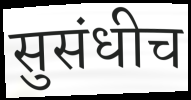
सुसंधीच